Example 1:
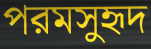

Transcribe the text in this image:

পরমসুহৃদ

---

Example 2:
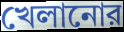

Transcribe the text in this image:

খেলানোর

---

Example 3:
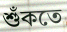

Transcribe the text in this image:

শুঁকতে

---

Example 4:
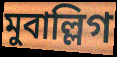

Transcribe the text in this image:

মুবাল্লিগ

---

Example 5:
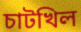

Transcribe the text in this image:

চাটখিল